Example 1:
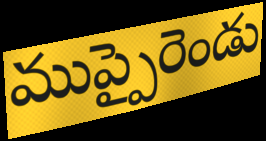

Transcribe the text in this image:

ముప్పైరెండు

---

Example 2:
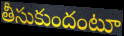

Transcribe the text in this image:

తీసుకుందంటూ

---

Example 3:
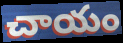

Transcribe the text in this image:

చాయం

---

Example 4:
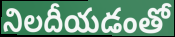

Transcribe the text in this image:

నిలదీయడంతో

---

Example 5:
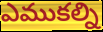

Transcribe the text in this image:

ఎముకల్ని